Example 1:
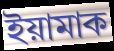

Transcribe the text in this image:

ইয়ামাক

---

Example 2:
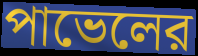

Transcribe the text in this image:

পাভেলের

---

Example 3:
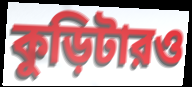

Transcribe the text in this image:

কুড়িটারও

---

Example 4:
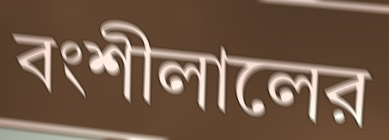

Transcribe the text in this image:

বংশীলালের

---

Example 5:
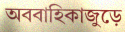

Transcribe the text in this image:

অববাহিকাজুড়ে